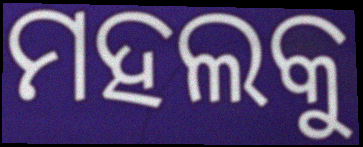
ମହଲକୁ